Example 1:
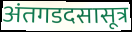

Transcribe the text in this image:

अंतगडदसासूत्र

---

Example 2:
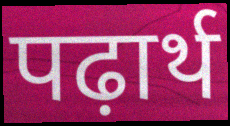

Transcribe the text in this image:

पढ़ार्थ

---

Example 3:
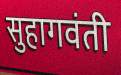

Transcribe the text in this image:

सुहागवंती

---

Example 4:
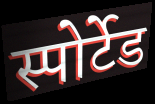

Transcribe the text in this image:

स्पोर्टेड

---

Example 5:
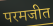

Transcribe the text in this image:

परमजीत